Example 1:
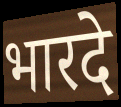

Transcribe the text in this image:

भारदे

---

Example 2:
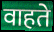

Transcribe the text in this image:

वाहते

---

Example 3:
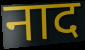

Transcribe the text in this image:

नाद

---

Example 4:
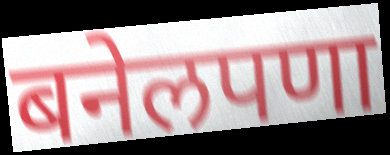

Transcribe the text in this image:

बनेलपणा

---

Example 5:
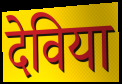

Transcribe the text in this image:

देविया